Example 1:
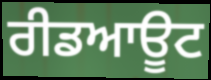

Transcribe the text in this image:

ਰੀਡਆਊਟ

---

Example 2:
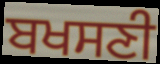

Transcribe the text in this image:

ਬਖਸਣੀ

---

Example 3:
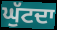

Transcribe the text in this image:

ਘੁੱਟਦਾ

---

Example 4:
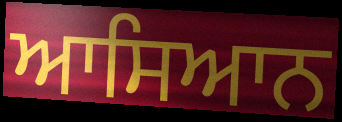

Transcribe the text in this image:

ਆਸਿਆਨ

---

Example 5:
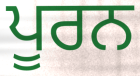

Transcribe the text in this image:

ਪੂਰਨ